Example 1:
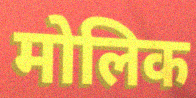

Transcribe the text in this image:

मोलिक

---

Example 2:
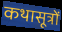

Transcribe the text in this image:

कथासूत्रों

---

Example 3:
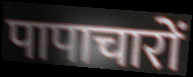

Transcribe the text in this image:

पापाचारों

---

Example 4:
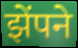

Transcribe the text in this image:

झेंपने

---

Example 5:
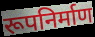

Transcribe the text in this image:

रूपनिर्माण